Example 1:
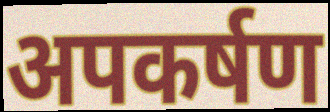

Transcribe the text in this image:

अपकर्षण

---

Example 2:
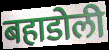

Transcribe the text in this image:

बहाडोली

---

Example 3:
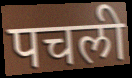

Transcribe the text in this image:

पचली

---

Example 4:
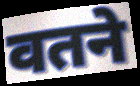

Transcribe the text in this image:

वतने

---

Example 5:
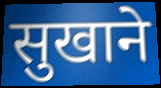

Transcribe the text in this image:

सुखाने